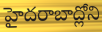
హైదరాబాద్లోని